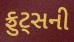
ફ્રુટ્સની